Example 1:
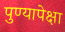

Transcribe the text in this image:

पुण्यापेक्षा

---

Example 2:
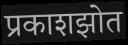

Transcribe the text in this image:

प्रकाशझोत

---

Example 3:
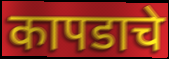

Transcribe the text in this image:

कापडाचे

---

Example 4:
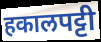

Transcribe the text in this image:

हकालपट्टी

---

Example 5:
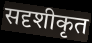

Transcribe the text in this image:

सदृशीकृत